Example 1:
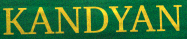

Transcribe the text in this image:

KANDYAN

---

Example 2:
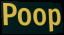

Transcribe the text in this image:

Poop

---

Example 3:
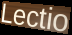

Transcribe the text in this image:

Lectio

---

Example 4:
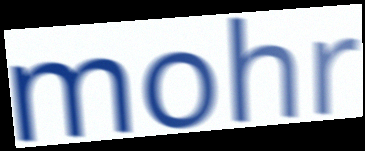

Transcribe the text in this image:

mohr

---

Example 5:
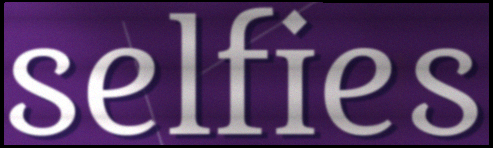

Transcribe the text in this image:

selfies